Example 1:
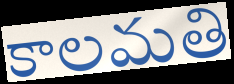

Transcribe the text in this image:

కాలమతి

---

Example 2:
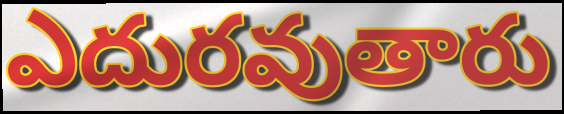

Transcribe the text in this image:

ఎదురవుతారు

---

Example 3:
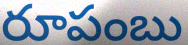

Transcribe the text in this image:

రూపంబు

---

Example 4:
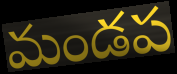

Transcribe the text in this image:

మండప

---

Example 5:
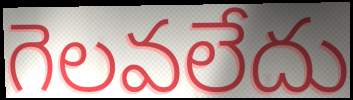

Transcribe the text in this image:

గెలవలేదు